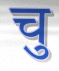
चु